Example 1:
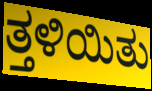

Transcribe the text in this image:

ತ್ತಳಿಯಿತು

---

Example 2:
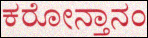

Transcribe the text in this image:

ಕರೋನ್ತಾನಂ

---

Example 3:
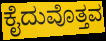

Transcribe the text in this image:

ಕೈದುವೊತ್ತವ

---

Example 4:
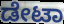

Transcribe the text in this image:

ಡೇಟಾ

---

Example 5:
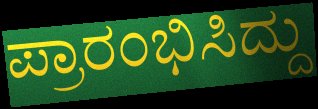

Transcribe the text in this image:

ಪ್ರಾರಂಭಿಸಿದ್ದು